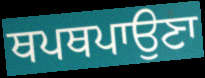
ਥਪਥਪਾਉਣਾ